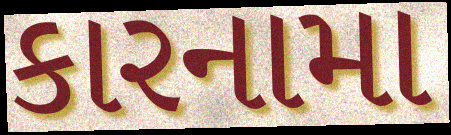
કારનામા